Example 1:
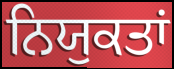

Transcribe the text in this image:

ਨਿਯੁਕਤਾਂ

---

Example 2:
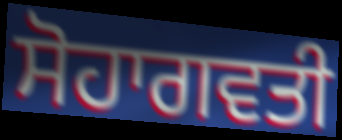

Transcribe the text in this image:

ਸੋਹਾਗਵਤੀ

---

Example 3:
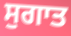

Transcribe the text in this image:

ਸੁਗਾਤ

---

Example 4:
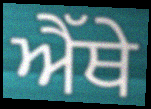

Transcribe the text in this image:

ਐੱਥੇ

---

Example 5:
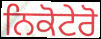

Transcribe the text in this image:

ਨਿਕੋਟੇਰੋ